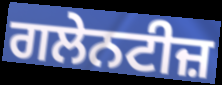
ਗਲੇਨਟੀਜ਼